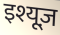
इश्यूज़